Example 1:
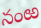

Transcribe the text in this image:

నంఱ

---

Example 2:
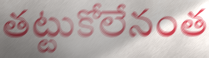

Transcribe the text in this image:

తట్టుకోలేనంత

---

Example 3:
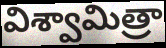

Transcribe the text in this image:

విశ్వామిత్రా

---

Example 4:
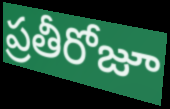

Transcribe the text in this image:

ప్రతీరోజూ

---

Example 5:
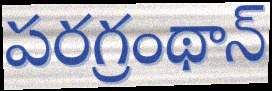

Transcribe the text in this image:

పరగ్రంథాన్